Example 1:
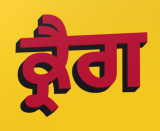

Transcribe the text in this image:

ਕ੍ਰੈਗ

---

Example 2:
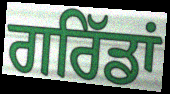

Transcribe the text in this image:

ਗਰਿੱਡਾਂ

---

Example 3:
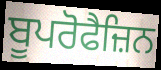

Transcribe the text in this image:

ਬੂਪਰੋਫੈਜ਼ਿਨ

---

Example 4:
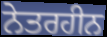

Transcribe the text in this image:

ਨੇਤਰਹੀਨ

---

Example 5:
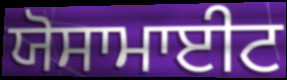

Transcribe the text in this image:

ਯੋਸਾਮਾਈਟ